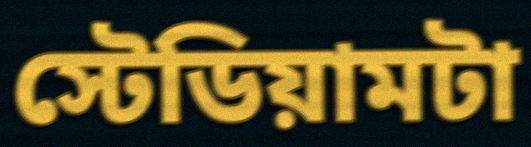
স্টেডিয়ামটা